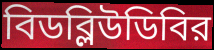
বিডব্লিউডিবির